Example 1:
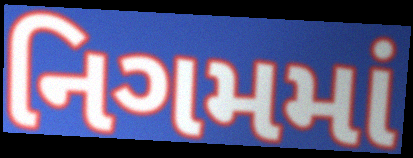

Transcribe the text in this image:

નિગમમાં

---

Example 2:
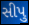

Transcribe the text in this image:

સીપુ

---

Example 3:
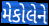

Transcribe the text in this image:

મેકોલેને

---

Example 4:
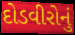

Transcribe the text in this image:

દોડવીરોનું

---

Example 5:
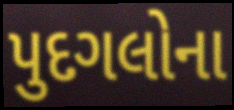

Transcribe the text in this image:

પુદગલોના